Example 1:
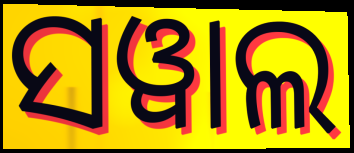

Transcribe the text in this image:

ସୱାଲ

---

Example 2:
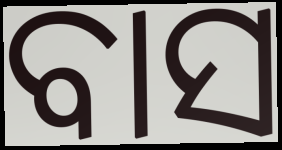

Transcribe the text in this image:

ବାସ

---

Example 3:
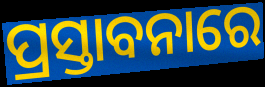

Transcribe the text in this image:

ପ୍ରସ୍ତାବନାରେ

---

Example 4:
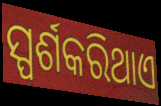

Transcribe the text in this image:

ସ୍ପର୍ଶକରିଥାଏ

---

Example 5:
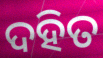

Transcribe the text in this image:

ଦହିତ